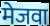
मेजवा